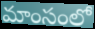
మాంసంలో